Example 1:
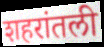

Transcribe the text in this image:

शहरांतली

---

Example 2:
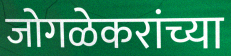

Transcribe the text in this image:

जोगळेकरांच्या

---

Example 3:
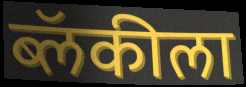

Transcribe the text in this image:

ब्लॅकीला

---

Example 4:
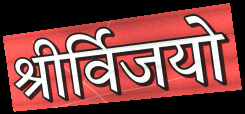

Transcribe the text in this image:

श्रीर्विजयो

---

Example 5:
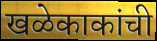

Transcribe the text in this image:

खळेकाकांची